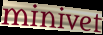
minivet